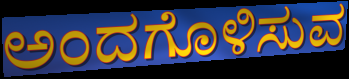
ಅಂದಗೊಳಿಸುವ